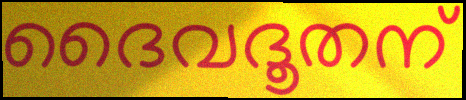
ദൈവദൂതന്